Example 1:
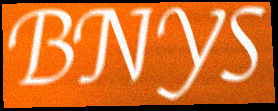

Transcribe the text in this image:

BNYS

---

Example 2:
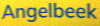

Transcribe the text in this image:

Angelbeek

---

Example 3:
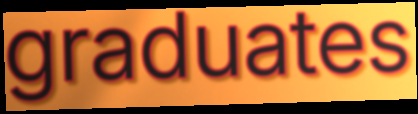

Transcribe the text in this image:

graduates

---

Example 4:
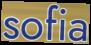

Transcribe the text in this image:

sofia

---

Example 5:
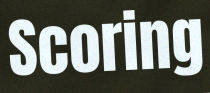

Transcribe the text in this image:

Scoring